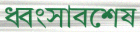
ধ্বংসাবশেষ